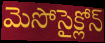
మెసోసైక్లోన్